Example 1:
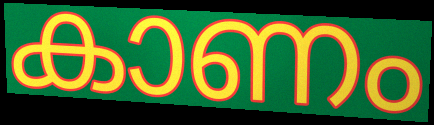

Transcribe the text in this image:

കാണം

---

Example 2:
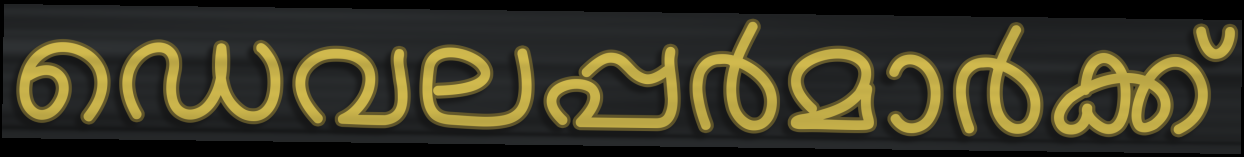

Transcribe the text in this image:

ഡെവലപ്പർമാർക്ക്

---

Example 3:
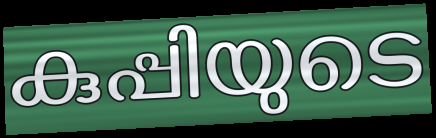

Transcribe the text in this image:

കുപ്പിയുടെ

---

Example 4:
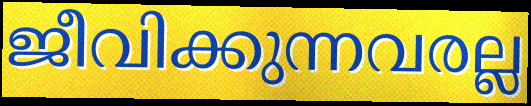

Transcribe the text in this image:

ജീവിക്കുന്നവരല്ല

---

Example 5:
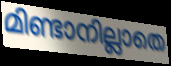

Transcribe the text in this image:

മിണ്ടാനില്ലാതെ